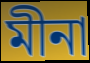
মীনা